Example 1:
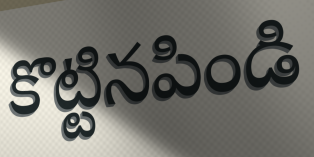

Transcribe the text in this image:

కొట్టినపిండి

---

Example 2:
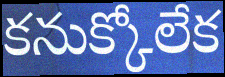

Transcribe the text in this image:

కనుక్కోలేక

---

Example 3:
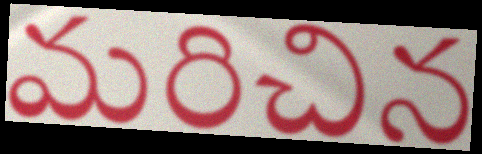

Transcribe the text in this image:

మరిచిన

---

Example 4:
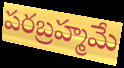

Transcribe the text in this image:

పరబ్రహ్మమే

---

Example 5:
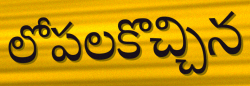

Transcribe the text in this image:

లోపలకొచ్చిన